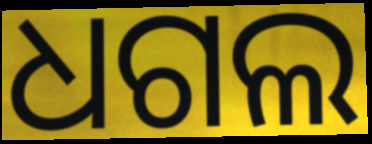
ଧଗଲ